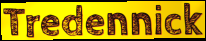
Tredennick